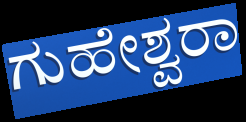
ಗುಹೇಶ್ವರಾ